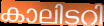
കാലിടറി